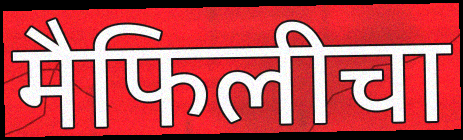
मैफिलीचा